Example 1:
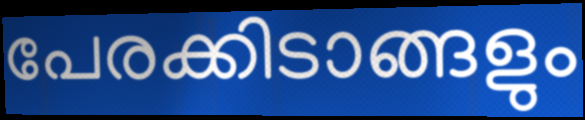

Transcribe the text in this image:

പേരക്കിടാങ്ങളും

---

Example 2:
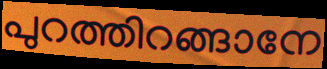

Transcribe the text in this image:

പുറത്തിറങ്ങാനേ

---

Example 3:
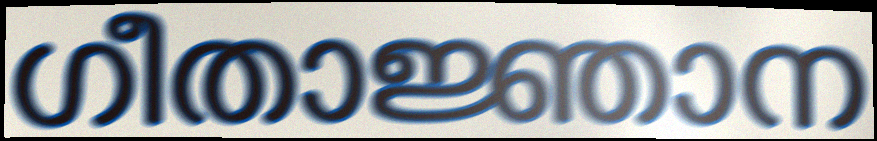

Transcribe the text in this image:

ഗീതാജ്ഞാന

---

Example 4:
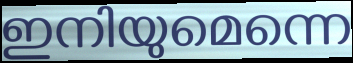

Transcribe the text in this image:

ഇനിയുമെന്നെ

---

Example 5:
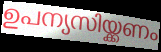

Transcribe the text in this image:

ഉപന്യസിയ്ക്കണം